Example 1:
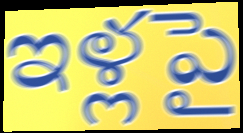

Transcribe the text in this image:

ఇళ్లపై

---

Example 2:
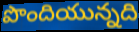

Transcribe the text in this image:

పొందియున్నది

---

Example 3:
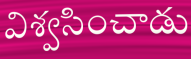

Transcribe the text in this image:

విశ్వసించాడు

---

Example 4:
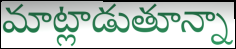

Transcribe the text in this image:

మాట్లాడుతూన్నా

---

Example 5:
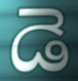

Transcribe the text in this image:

డె